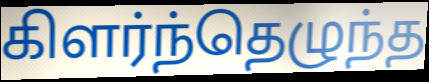
கிளர்ந்தெழுந்த